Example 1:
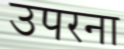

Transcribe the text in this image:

उपरना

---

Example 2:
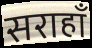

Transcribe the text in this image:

सराहाँ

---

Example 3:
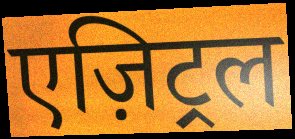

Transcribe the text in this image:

एज़िट्रल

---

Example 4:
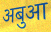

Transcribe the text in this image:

अबुआ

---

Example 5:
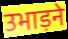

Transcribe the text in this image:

उभाड़ने